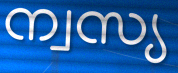
ന്വസ്യ